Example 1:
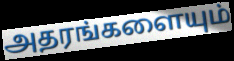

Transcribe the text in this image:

அதரங்களையும்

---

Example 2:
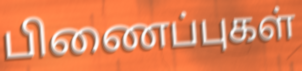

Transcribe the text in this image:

பிணைப்புகள்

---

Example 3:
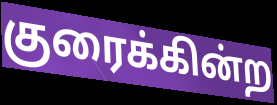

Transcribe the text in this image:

குரைக்கின்ற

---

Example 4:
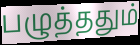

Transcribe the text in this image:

பழுத்ததும்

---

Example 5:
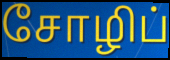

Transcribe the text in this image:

சோழிப்